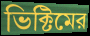
ভিক্টিমের